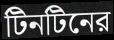
টিনটিনের